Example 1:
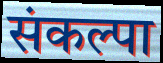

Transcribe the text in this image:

संकल्पा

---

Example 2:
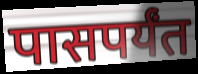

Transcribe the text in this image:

पासपर्यंत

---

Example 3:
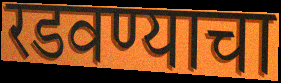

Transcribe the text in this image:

रडवण्याचा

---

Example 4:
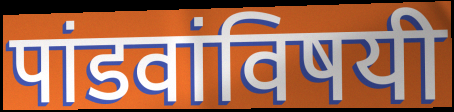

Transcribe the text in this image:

पांडवांविषयी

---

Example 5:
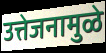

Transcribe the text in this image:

उत्तेजनामुळे